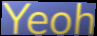
Yeoh